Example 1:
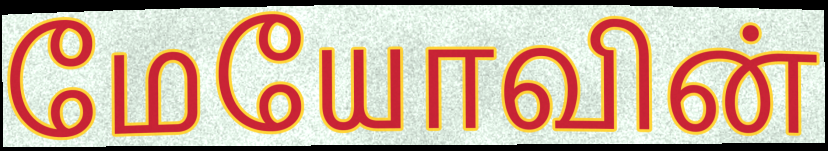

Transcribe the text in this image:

மேயோவின்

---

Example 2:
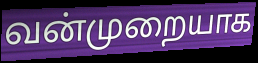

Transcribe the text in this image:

வன்முறையாக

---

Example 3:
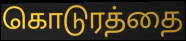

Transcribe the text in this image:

கொடுரத்தை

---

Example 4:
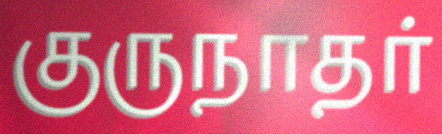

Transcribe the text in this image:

குருநாதர்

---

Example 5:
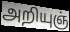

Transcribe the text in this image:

அறியுஞ்